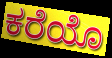
ಕರೆಯೊ